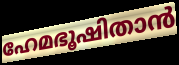
ഹേമഭൂഷിതാൻ